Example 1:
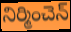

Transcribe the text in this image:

నిర్మించెన్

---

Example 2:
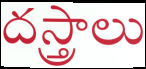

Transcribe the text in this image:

దస్త్రాలు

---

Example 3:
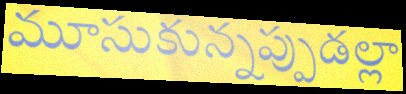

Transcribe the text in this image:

మూసుకున్నప్పుడల్లా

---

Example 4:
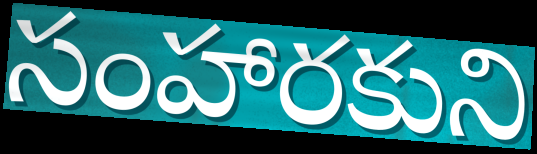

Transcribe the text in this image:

సంహారకుని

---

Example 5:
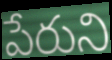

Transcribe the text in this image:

పేరుని